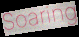
Soaring